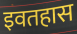
इवतहास